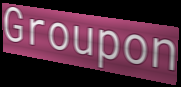
Groupon